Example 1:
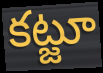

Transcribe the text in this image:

కట్జూ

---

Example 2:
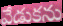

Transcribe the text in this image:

వేడుకను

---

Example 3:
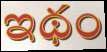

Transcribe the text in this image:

ఇథం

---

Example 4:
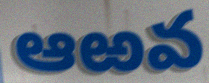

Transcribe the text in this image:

ఆఱవ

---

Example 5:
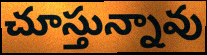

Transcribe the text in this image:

చూస్తున్నావు